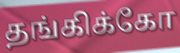
தங்கிக்கோ